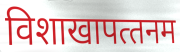
विशाखापत्‍तनम